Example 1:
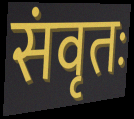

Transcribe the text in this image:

संवृतः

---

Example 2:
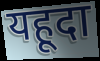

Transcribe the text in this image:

यहूदा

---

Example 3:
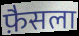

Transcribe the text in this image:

फ़ैसला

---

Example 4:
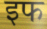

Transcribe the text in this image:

इफ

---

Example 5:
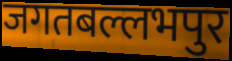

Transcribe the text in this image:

जगतबल्लभपुर